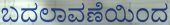
ಬದಲಾವಣೆಯಿಂದ